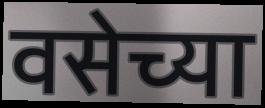
वसेच्या